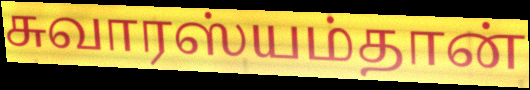
சுவாரஸ்யம்தான்